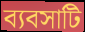
ব্যবসাটি